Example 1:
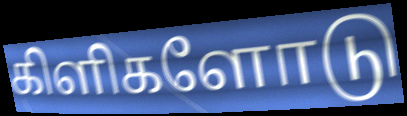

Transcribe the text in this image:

கிளிகளோடு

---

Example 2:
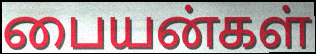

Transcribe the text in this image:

பையன்கள்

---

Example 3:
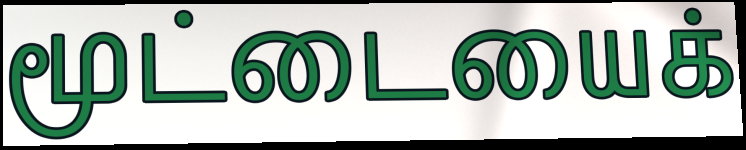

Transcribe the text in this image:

மூட்டையைக்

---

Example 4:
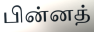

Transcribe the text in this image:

பின்னத்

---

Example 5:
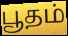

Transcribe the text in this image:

பூதம்